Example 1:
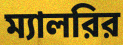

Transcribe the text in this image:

ম্যালরির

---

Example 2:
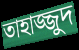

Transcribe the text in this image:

তাহাজ্জুদ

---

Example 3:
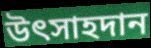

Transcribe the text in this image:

উৎসাহদান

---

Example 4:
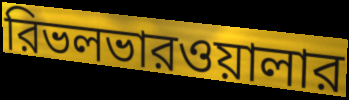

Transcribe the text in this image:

রিভলভারওয়ালার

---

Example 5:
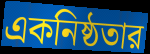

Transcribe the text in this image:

একনিষ্ঠতার